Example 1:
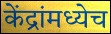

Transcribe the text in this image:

केंद्रांमध्येच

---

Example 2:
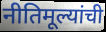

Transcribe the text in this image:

नीतिमूल्यांची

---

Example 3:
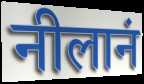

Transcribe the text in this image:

नीलानं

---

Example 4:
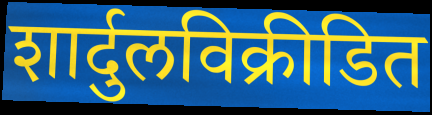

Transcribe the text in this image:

शार्दुलविक्रीडित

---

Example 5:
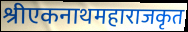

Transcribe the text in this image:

श्रीएकनाथमहाराजकृत